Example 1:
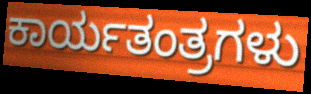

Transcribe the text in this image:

ಕಾರ್ಯತಂತ್ರಗಳು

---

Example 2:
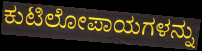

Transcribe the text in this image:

ಕುಟಿಲೋಪಾಯಗಳನ್ನು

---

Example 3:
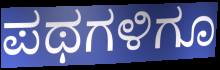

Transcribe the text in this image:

ಪಥಗಳಿಗೂ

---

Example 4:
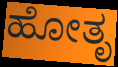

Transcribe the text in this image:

ಹೋತೃ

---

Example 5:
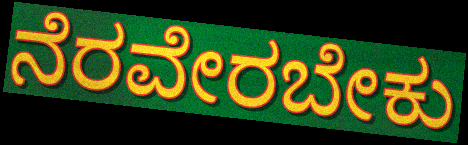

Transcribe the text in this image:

ನೆರವೇರಬೇಕು